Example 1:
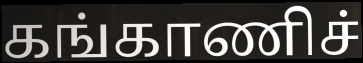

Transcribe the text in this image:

கங்காணிச்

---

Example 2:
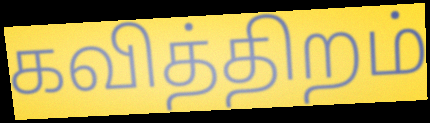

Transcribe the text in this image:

கவித்திறம்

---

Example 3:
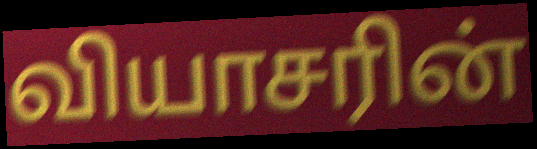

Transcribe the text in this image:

வியாசரின்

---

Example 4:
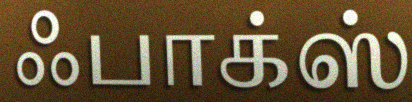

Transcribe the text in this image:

ஃபாக்ஸ்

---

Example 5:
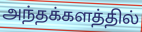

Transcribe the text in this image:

அந்தக்களத்தில்